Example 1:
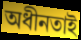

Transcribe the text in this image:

অধীনতাই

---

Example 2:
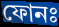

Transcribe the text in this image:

ফোনঃ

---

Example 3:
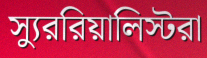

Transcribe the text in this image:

স্যুররিয়ালিস্টরা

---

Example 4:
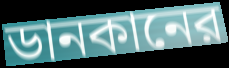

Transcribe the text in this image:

ডানকানের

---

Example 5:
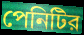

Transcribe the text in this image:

পেনিটির